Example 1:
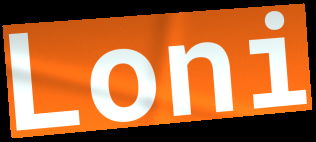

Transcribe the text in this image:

Loni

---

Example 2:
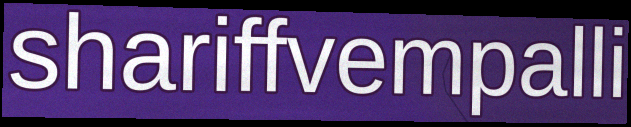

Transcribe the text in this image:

shariffvempalli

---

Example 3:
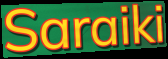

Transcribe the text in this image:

Saraiki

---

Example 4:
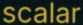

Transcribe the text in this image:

scalar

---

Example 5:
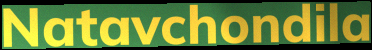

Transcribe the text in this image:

Natavchondila